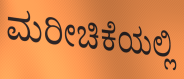
ಮರೀಚಿಕೆಯಲ್ಲಿ